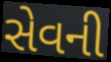
સેવની